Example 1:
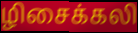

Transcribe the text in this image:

ழிசைக்கலி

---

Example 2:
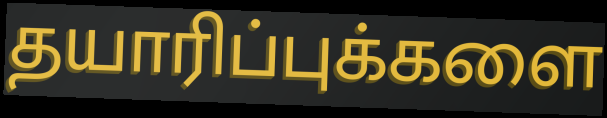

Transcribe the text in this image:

தயாரிப்புக்களை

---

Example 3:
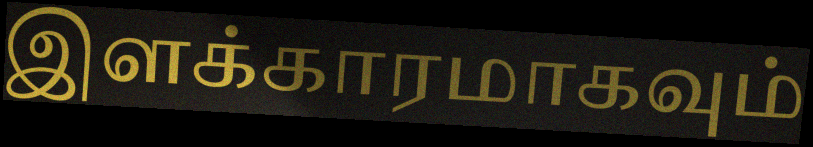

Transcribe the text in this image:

இளக்காரமாகவும்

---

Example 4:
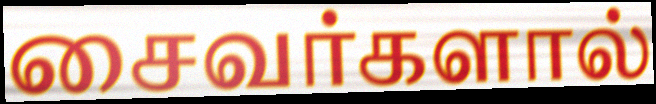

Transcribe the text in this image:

சைவர்களால்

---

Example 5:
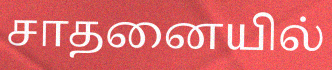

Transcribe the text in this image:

சாதனையில்